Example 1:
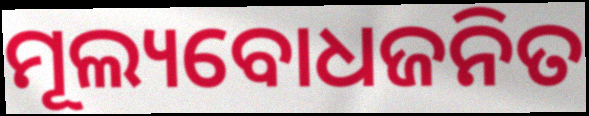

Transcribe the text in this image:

ମୂଲ୍ୟବୋଧଜନିତ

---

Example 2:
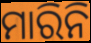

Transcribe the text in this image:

ମାରିନି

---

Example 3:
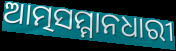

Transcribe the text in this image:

ଆତ୍ମସମ୍ମାନଧାରୀ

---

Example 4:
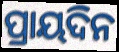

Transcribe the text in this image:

ପ୍ରାୟଦିନ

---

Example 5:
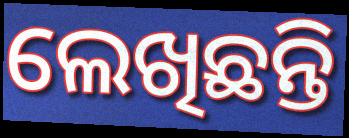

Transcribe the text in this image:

ଲେଖିଛନ୍ତି